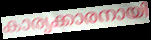
കാര്യക്കാരനായി